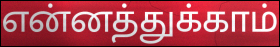
என்னத்துக்காம்